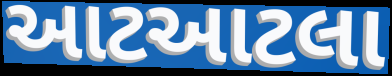
આટઆટલા